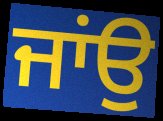
ਜਾਂਉ